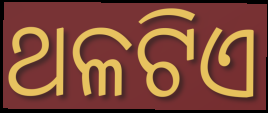
ଥଳଟିଏ